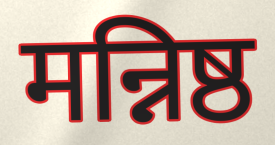
मन्निष्ठ